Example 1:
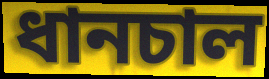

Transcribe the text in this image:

ধানচাল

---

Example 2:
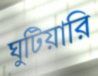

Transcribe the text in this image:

ঘুটিয়ারি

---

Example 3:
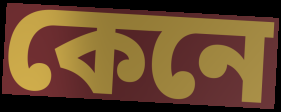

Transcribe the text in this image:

কেনে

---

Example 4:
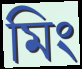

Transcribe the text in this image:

মিং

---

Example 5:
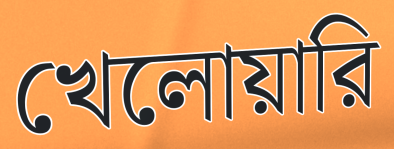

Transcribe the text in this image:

খেলোয়ারি